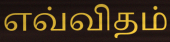
எவ்விதம்